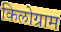
किलोग्राम